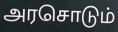
அரசொடும்